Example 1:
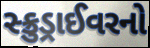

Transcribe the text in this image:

સ્ક્રુડ્રાઈવરનો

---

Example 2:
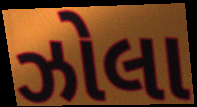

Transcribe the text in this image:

ઝોલા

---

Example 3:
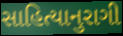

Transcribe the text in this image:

સાહિત્યાનુરાગી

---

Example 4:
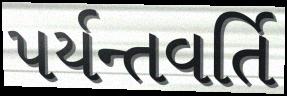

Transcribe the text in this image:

પર્યન્તવર્તિ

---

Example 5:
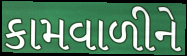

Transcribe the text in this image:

કામવાળીને